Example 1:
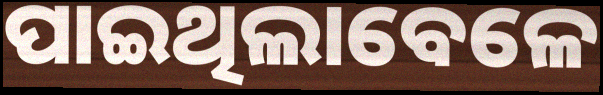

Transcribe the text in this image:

ପାଇଥିଲାବେଳେ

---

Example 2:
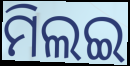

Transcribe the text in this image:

ମିଲଇ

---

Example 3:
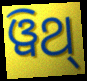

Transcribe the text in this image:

ୱିଥ୍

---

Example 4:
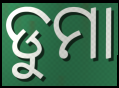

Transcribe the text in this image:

ଡୁମା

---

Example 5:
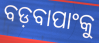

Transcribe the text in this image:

ବଡ଼ବାପାଂକୁ